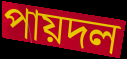
পায়দল